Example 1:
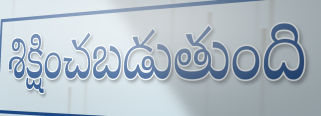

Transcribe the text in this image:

శిక్షించబడుతుంది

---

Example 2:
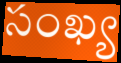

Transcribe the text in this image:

సంఖ్య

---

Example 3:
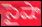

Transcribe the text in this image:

సైషా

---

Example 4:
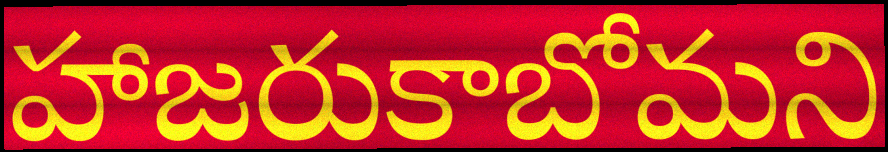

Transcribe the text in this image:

హాజరుకాబోమని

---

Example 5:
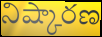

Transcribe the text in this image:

నిష్కారణ